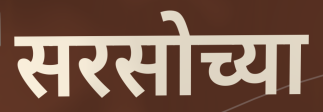
सरसोच्या